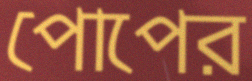
পোপের